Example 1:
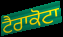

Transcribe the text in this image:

ਟੈਰਾਕੋਟਾ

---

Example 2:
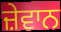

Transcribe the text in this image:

ਜ਼ੇਵਾਨ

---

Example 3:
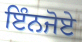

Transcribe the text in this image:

ਇੰਨਜੋਏ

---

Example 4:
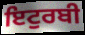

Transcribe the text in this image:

ਇਟੁਰਬੀ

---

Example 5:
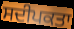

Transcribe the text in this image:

ਸਦੀਪਕਤਾ